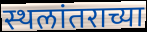
स्थलांतराच्या